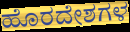
ಹೊರದೇಶಗಳ